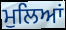
ਮੁਲਿਆਂ